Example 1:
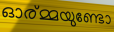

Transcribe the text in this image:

ഓര്മ്മയുണ്ടോ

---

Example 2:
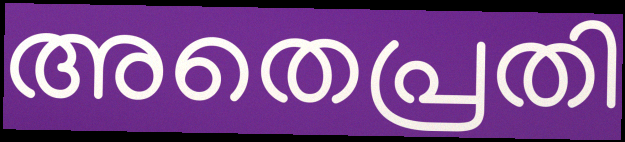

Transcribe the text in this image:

അതെപ്രതി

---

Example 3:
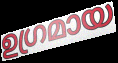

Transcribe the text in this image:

ഉഗ്രമായ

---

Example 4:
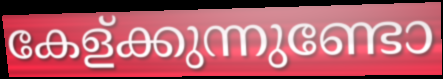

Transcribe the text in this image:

കേള്ക്കുന്നുണ്ടോ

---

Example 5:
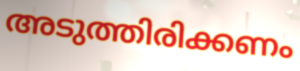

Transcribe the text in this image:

അടുത്തിരിക്കണം